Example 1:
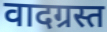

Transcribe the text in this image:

वादग्रस्त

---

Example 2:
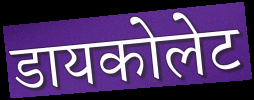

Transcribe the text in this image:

डायकोलेट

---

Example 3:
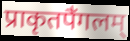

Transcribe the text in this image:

प्राकृतपैंगलम्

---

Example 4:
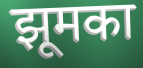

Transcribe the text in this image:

झूमका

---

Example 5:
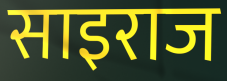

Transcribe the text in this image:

साइराज